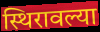
स्थिरावल्या